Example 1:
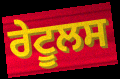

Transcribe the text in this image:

ਰੇਟੂਲਸ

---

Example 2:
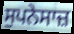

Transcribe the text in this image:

ਸੁਪਨੇਸਾਜ਼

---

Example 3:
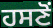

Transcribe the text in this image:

ਹਸਣੋਂ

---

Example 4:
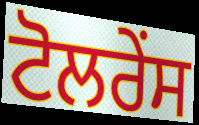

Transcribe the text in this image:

ਟੋਲਰੇਂਸ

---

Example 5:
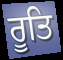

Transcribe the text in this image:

ਰੂਤਿ